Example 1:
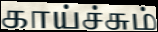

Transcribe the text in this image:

காய்ச்சும்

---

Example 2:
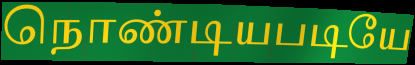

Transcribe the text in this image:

நொண்டியபடியே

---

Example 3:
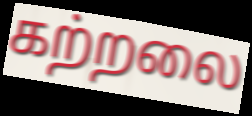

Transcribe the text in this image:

கற்றலை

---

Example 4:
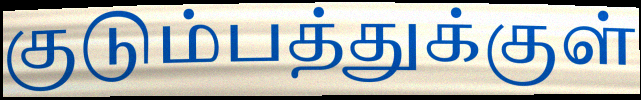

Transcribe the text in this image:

குடும்பத்துக்குள்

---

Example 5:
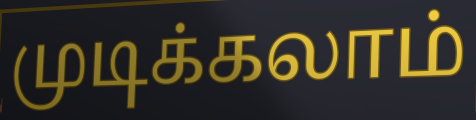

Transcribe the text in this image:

முடிக்கலாம்